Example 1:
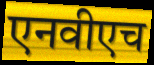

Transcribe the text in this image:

एनवीएच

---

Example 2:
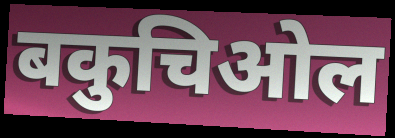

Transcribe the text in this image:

बकुचिओल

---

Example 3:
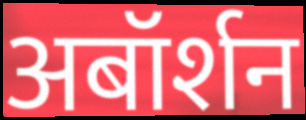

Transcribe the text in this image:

अबॉर्शन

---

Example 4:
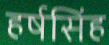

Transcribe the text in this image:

हर्षसिंह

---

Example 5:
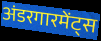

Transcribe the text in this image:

अंडरगारमेंट्स